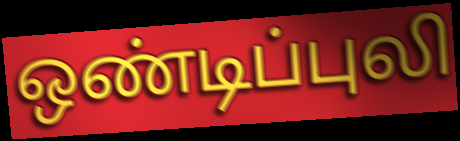
ஒண்டிப்புலி